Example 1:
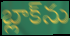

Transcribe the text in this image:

బ్లాక్‌ను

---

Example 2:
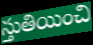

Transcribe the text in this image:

స్తుతియించి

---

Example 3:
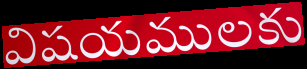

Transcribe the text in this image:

విషయములకు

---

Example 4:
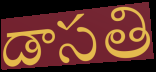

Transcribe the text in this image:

డాసతి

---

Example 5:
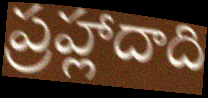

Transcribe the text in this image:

ప్రహ్లాదాది